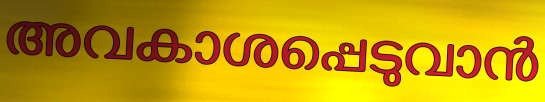
അവകാശപ്പെടുവാൻ